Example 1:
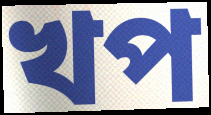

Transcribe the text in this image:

খপ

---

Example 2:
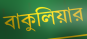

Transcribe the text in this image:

বাকুলিয়ার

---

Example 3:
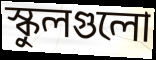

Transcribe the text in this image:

স্কুলগুলো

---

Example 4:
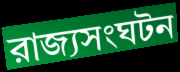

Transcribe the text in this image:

রাজ্যসংঘটন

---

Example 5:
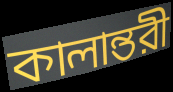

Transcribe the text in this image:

কালান্তরী